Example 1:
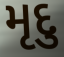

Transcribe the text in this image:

મૃદુ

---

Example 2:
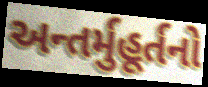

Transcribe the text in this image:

અન્તર્મુહૂર્તનો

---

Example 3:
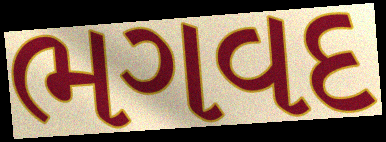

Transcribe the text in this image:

ભગવદ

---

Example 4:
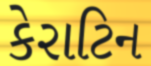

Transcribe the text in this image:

કેરાટિન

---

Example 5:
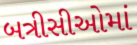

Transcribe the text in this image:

બત્રીસીઓમાં